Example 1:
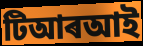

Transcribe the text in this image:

টিআৰআই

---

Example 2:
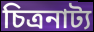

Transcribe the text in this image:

চিত্ৰনাট্য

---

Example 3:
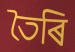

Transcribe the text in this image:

তৈৰি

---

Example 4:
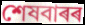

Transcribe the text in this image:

শেষবাৰৰ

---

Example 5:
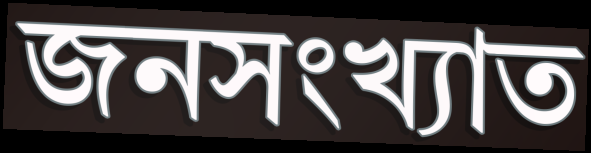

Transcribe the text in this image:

জনসংখ্যাত